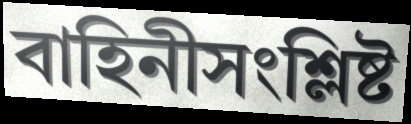
বাহিনীসংশ্লিষ্ট